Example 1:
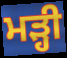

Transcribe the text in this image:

ਮੜ੍ਹੀ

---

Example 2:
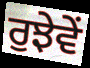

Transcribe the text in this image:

ਰੁਝੇਵੇਂ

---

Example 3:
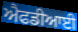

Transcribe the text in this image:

ਐਫਡੀਆਈ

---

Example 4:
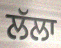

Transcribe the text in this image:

ਲੱਲਾ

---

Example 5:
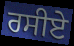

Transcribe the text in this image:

ਰਸੀਏ